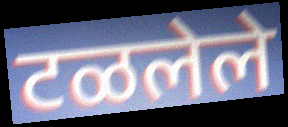
टळलेले